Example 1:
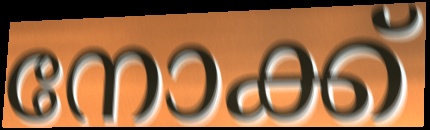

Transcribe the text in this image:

നോക്ക്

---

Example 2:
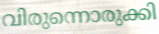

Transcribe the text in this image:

വിരുന്നൊരുക്കി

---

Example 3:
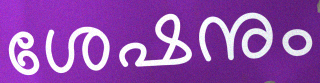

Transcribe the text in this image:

ശേഷനും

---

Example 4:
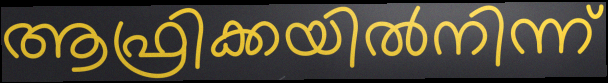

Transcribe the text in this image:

ആഫ്രിക്കയിൽനിന്ന്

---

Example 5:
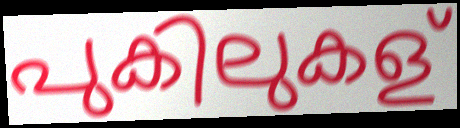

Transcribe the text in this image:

പുകിലുകള്